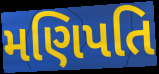
મણિપતિ